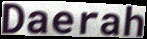
Daerah